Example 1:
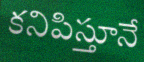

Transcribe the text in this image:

కనిపిస్తూనే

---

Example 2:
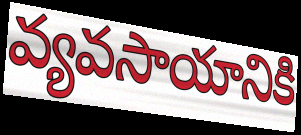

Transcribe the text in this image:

వ్యవసాయానికి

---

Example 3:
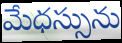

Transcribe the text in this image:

మేధస్సును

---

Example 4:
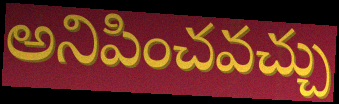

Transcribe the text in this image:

అనిపించవచ్చు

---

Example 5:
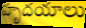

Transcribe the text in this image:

హృదయాలు